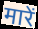
मारें